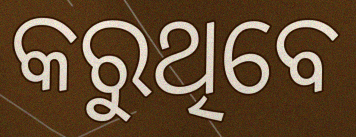
କରୁଥିବେ